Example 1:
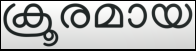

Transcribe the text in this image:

ക്രൂരമായ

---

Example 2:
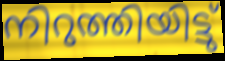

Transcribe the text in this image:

നിറുത്തിയിട്ടു്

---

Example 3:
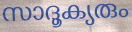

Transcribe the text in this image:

സാദൂക്യരും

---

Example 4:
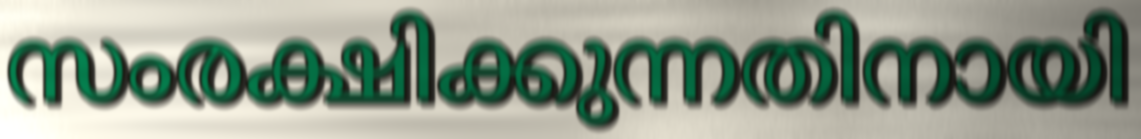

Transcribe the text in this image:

സംരക്ഷിക്കുന്നതിനായി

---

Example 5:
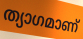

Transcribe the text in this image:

ത്യാഗമാണ്